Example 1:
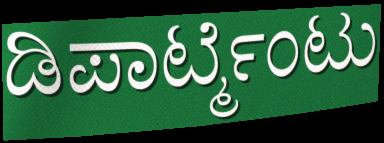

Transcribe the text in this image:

ಡಿಪಾರ್ಟ್ಮೆಂಟು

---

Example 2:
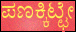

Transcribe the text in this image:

ಪಣಕ್ಕಿಟ್ಟೇ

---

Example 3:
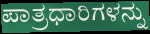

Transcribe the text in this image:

ಪಾತ್ರಧಾರಿಗಳನ್ನು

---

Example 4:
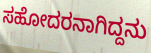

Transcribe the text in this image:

ಸಹೋದರನಾಗಿದ್ದನು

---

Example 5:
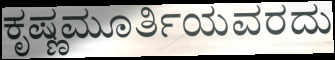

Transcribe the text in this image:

ಕೃಷ್ಣಮೂರ್ತಿಯವರದು